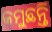
କମୁଛନ୍ତି